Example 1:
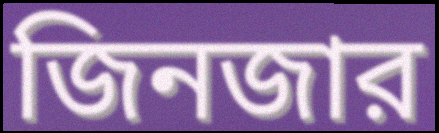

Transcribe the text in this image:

জিনজার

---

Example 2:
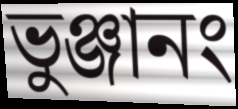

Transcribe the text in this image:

ভুঞ্জানং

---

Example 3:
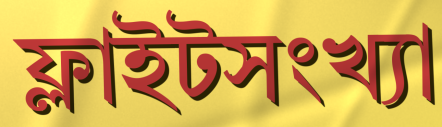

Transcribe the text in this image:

ফ্লাইটসংখ্যা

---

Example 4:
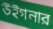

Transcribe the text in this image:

উইগনার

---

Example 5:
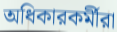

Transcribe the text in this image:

অধিকারকর্মীরা